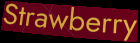
Strawberry